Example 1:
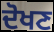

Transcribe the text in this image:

ਦੋਖਣ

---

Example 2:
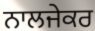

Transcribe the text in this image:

ਨਾਲਜੇਕਰ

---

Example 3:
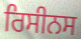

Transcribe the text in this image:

ਰਿਸੀਨਸ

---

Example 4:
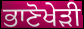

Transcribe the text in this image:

ਭਾਣੋਖੇੜੀ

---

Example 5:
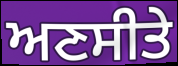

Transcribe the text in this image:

ਅਣਸੀਤੇ